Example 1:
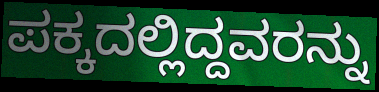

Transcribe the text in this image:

ಪಕ್ಕದಲ್ಲಿದ್ದವರನ್ನು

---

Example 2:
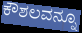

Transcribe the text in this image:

ಕೌಶಲವನ್ನೂ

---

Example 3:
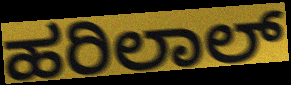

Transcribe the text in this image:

ಹರಿಲಾಲ್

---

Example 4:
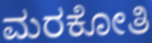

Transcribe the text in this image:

ಮರಕೋತಿ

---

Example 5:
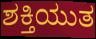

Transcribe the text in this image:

ಶಕ್ತಿಯುತ